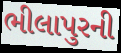
ભીલાપુરની